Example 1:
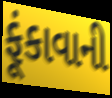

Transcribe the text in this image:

ફૂંકાવાની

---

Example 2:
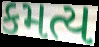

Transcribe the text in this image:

કમત્ય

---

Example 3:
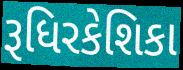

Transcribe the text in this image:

રૂધિરકેશિકા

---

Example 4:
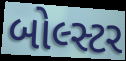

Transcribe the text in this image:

બોલ્સ્ટર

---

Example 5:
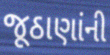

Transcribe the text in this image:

જૂઠાણાંની